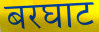
बरघाट